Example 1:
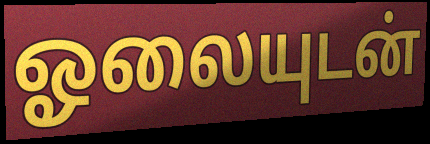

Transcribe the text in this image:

ஓலையுடன்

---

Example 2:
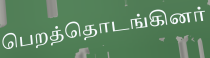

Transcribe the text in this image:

பெறத்தொடங்கினர்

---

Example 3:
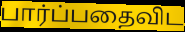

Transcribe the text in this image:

பார்ப்பதைவிட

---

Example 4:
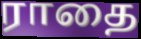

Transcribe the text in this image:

ராதை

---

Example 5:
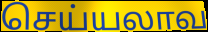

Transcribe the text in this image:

செய்யலாவ